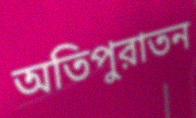
অতিপুরাতন